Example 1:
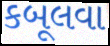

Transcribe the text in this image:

કબૂલવા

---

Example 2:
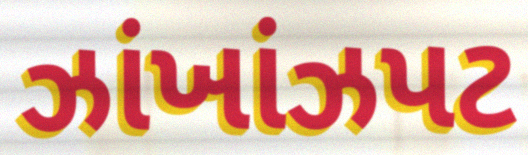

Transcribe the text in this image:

ઝાંખાંઝપટ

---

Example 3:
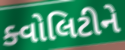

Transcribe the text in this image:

ક્વોલિટીને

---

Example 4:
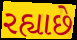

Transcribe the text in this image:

રહ્યાછે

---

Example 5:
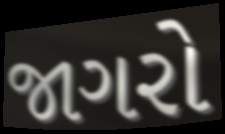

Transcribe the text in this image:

જાગરો